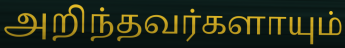
அறிந்தவர்களாயும்